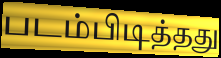
படம்பிடித்தது